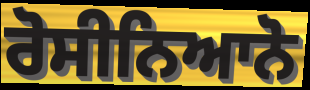
ਰੋਸੀਨਿਆਨੋ